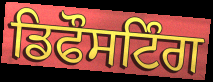
ਡਿਫੌਸਟਿੰਗ